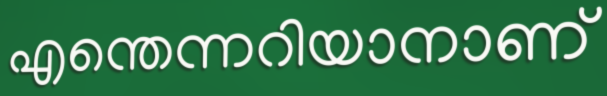
എന്തെന്നറിയാനാണ്